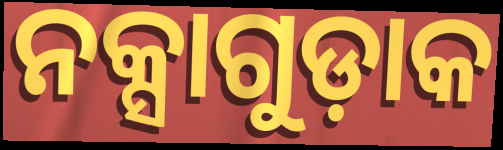
ନକ୍ସାଗୁଡ଼ାକ